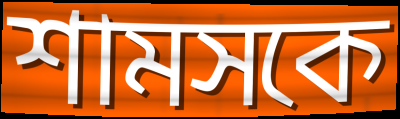
শামসকে